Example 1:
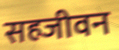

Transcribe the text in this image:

सहजीवन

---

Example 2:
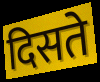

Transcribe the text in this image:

दिसते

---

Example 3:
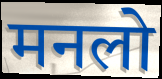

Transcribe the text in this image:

मनलो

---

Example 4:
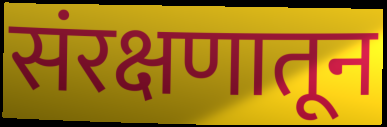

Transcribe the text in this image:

संरक्षणातून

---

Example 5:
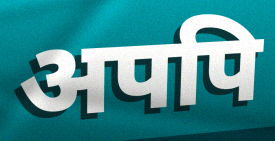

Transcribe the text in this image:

अपपि